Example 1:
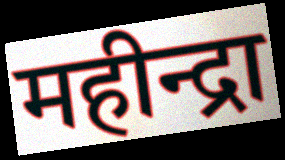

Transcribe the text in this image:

महीन्द्रा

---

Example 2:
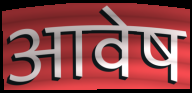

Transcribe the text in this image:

आवेष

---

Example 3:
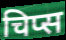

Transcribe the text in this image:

चिप्स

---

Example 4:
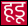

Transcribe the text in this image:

हूडू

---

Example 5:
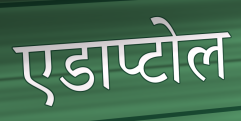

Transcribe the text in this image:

एडाप्टोल